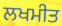
ਲਖਮੀਤ